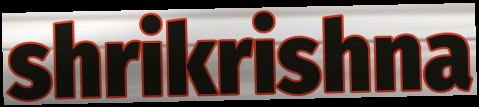
shrikrishna